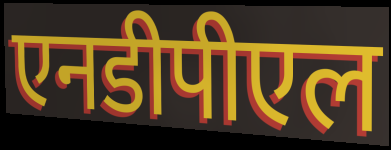
एनडीपीएल